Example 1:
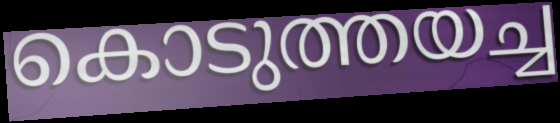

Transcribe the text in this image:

കൊടുത്തയച്ച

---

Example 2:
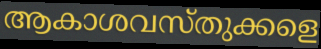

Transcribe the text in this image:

ആകാശവസ്തുക്കളെ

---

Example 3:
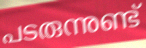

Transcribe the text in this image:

പടരുന്നുണ്ട്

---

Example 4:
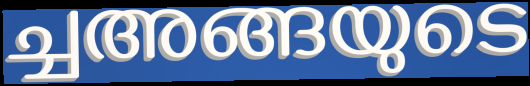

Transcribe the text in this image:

ച്ചഅങ്ങയുടെ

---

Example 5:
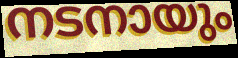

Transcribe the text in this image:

നടനായും